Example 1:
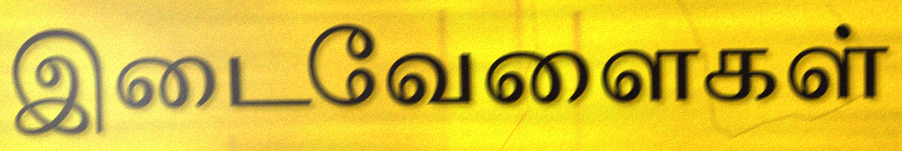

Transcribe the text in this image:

இடைவேளைகள்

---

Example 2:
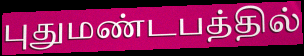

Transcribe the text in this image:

புதுமண்டபத்தில்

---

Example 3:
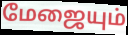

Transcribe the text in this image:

மேஜையும்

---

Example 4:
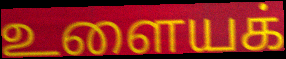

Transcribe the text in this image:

உளையக்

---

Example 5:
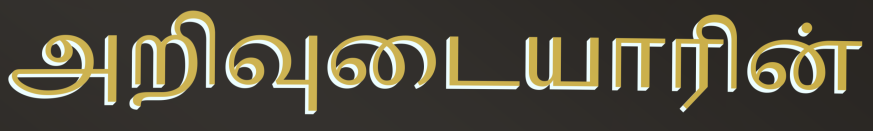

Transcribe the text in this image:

அறிவுடையாரின்